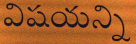
విషయన్ని